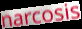
narcosis